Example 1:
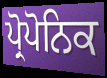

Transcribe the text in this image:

ਪ੍ਰੋਪੋਨਿਕ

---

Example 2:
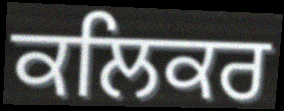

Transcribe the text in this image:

ਕਲਿਕਰ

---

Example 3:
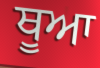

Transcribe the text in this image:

ਥੂਆ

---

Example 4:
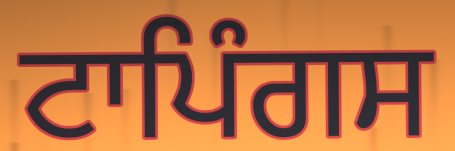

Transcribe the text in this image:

ਟਾਪਿੰਗਸ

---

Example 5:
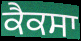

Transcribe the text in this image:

ਕੈਕਸਾ